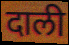
दाली